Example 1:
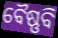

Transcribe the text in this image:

ବୈଷ୍ଣବି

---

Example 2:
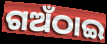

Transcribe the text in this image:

ଗଅଁଠାଇ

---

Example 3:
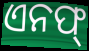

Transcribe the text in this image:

ଏନଫ୍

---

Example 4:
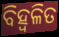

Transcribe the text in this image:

ବିହ୍ୱଳିତ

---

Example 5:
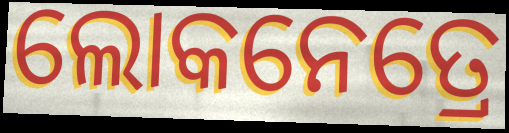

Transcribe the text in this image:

ଲୋକନେତ୍ରେ